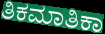
ತಿಕಮಾತಿಕಾ